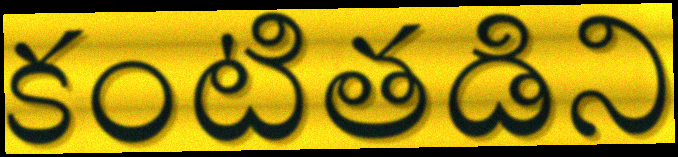
కంటితడిని